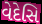
વેદેસિ